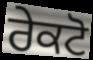
ਰੇਕਟੋ